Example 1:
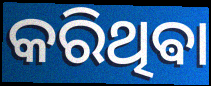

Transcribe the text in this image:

କରିଥିଵା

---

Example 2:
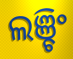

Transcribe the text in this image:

ଲଞ୍ଚିଂ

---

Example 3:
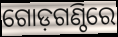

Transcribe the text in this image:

ଗୋଡ଼ଗଣ୍ଠିରେ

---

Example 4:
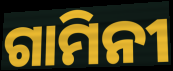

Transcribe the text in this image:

ଗାମିନୀ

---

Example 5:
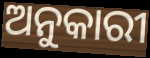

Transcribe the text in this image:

ଅନୁକାରୀ